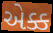
એક્ક